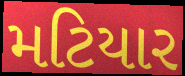
મટિયાર